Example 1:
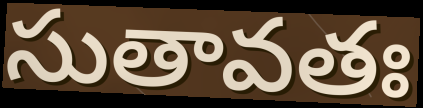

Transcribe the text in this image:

సుతావతః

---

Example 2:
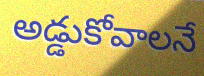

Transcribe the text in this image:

అడ్డుకోవాలనే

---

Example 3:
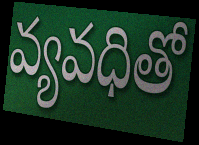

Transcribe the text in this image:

వ్యవధితో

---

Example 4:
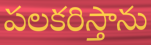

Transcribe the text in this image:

పలకరిస్తాను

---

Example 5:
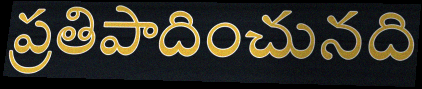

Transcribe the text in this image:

ప్రతిపాదించునది